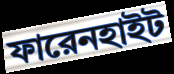
ফারেনহাইট